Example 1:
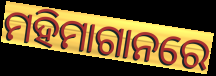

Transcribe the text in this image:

ମହିମାଗାନରେ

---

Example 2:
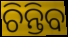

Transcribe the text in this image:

ଚିନ୍ତିବ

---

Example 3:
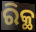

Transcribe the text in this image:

ରିକ୍ଥ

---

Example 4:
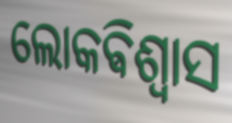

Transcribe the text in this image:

ଲୋକଵିଶ୍ଵାସ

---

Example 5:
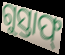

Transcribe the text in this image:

ଗୁସ୍ତାଫ୍